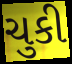
ચુકી